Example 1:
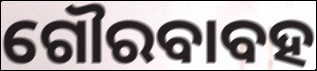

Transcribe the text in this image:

ଗୌରବାବହ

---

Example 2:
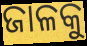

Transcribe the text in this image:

ଜାଳକୁ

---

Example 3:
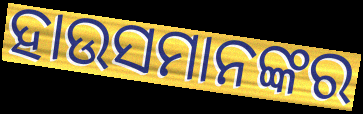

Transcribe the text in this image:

ହାଉସମାନଙ୍କର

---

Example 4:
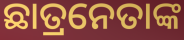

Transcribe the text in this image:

ଛାତ୍ରନେତାଙ୍କ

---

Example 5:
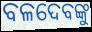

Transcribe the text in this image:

ବଳଦେବଙ୍କୁ